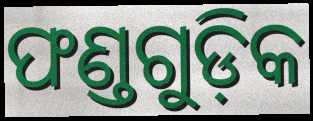
ଫଣ୍ଡଗୁଡ଼ିକ